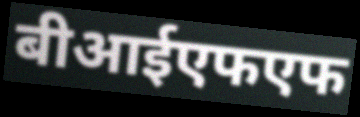
बीआईएफएफ